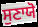
ਸੁਣਾਯੋ